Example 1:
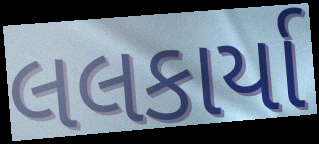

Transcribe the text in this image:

લલકાર્યા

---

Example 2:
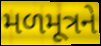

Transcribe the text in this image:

મળમૂત્રને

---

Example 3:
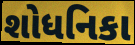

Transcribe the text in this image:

શોધનિકા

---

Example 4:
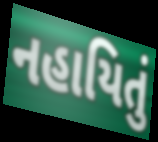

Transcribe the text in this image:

નહાયિતું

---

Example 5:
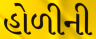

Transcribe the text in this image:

હોળીની